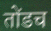
तोंडच